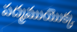
పద్మముయొక్క